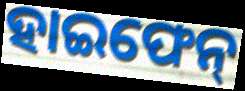
ହାଇଫେନ୍